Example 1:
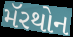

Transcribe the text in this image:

મૅરથોન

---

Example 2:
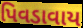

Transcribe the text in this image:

પિવડાવાય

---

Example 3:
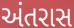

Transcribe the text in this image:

અંતરાસ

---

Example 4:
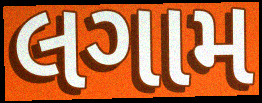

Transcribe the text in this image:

લગામ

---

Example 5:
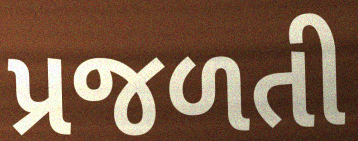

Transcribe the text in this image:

પ્રજળતી